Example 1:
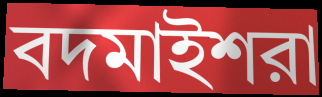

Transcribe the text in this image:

বদমাইশরা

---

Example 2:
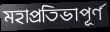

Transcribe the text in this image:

মহাপ্রতিভাপূর্ণ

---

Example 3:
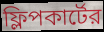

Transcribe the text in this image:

ফ্লিপকার্টের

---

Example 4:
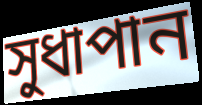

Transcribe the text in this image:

সুধাপান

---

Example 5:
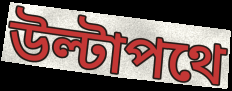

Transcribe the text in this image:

উল্টাপথে